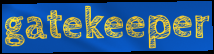
gatekeeper